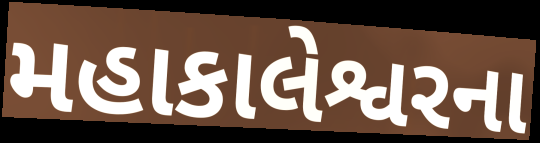
મહાકાલેશ્વરના